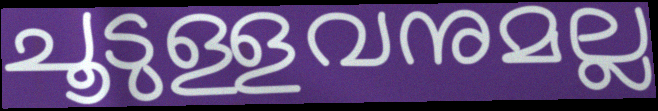
ചൂടുള്ളവനുമല്ല